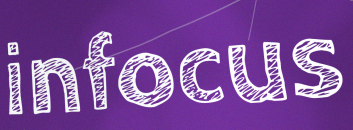
infocus